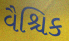
વૈશ્ચિક